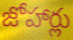
జోహార్లు